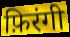
फ़िरंगी